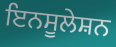
ਇਨਸੂਲੇਸ਼ਨ